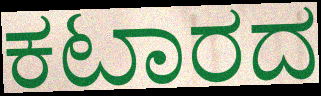
ಕಟಾರದ